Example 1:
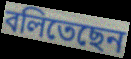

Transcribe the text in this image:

বলিতেছেন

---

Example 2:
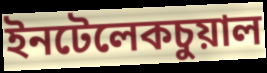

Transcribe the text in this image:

ইনটেলেকচুয়াল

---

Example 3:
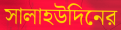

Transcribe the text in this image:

সালাহউদিনের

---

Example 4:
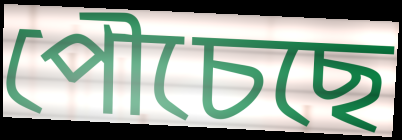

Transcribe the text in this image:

পৌচেছে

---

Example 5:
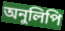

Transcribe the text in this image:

অনুলিপি